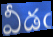
వీడఁ